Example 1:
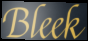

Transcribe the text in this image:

Bleek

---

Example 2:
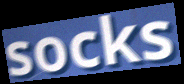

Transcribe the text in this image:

socks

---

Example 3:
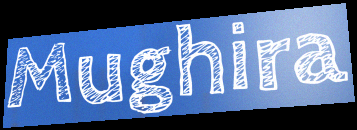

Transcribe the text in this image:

Mughira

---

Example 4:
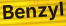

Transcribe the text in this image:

Benzyl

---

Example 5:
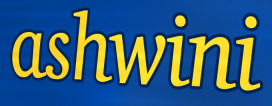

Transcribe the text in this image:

ashwini